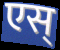
एस्